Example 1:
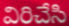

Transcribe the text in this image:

విరిచేసి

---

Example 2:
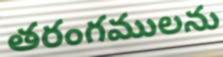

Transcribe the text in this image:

తరంగములను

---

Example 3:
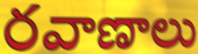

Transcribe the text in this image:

రవాణాలు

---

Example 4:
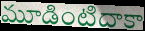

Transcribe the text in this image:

మూడింటిదాకా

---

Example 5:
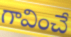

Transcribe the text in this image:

గావించే